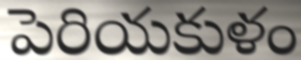
పెరియకుళం